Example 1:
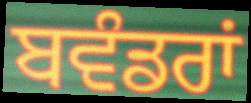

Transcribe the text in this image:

ਬਵੰਡਰਾਂ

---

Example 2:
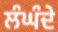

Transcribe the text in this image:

ਲੰਘੰਦੇ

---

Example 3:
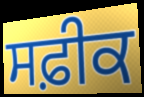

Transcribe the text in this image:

ਸਫ਼ੀਕ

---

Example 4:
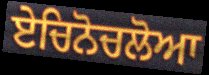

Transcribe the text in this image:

ਏਚਿਨੋਚਲੋਆ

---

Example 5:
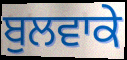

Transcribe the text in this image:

ਬੁਲਵਾਕੇ